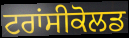
ਟਰਾਂਸੀਕੋਲਡ